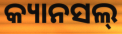
କ୍ୟାନସଲ୍